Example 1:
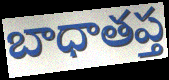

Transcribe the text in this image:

బాధాతప్త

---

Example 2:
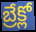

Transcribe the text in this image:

బ్రేక్లో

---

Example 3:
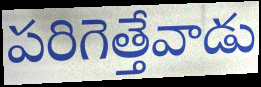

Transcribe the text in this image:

పరిగెత్తేవాడు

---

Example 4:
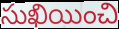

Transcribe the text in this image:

సుఖియించి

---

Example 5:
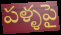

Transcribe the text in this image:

పళ్ళపై